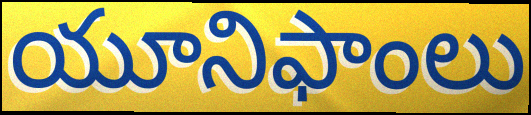
యూనిఫాంలు